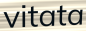
vitata